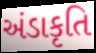
અંડાકૃતિ